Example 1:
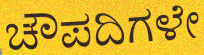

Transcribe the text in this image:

ಚೌಪದಿಗಳೇ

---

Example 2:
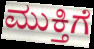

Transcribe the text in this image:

ಮುಕ್ತಿಗೆ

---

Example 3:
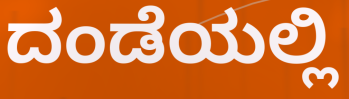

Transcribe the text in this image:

ದಂಡೆಯಲ್ಲಿ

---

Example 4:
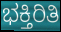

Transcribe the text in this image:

ಭಕ್ತಿರಿತಿ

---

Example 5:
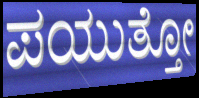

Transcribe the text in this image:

ಪಯುತ್ತೋ